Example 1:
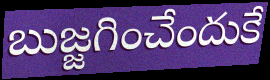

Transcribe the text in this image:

బుజ్జగించేందుకే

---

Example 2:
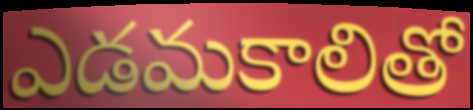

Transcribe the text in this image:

ఎడమకాలితో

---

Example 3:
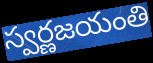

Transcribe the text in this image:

స్వర్ణజయంతి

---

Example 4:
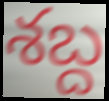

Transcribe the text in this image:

శబ్ద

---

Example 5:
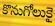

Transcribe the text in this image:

కొనుగోలుకై